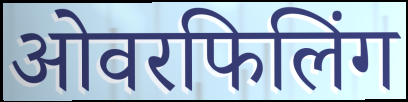
ओवरफिलिंग